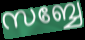
സബ്ബേ